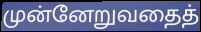
முன்னேறுவதைத்